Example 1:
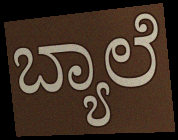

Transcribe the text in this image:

ಬ್ಯಾಲೆ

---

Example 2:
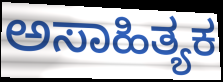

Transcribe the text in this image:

ಅಸಾಹಿತ್ಯಕ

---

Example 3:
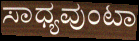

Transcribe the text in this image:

ಸಾಧ್ಯವುಂಟಾ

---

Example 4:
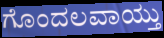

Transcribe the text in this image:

ಗೊಂದಲವಾಯ್ತು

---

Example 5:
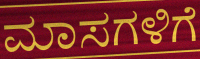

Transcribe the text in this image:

ಮಾಸಗಳಿಗೆ